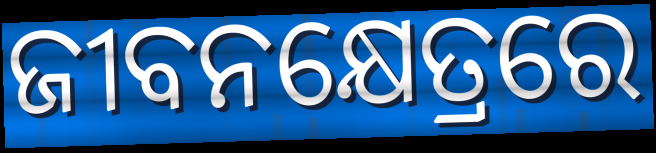
ଜୀବନକ୍ଷେତ୍ରରେ